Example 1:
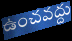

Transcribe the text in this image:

ఉంచవద్దు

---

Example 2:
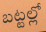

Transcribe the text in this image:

బట్టల్లో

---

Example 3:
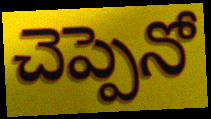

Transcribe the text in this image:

చెప్పెనో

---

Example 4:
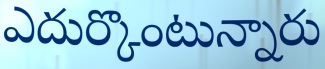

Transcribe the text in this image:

ఎదుర్కొంటున్నారు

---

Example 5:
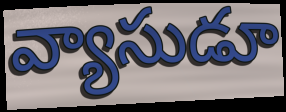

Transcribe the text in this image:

వ్యాసుడూ